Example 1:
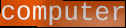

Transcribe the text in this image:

computer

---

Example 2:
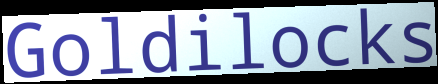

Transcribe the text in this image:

Goldilocks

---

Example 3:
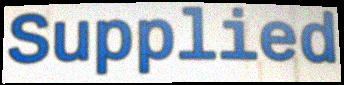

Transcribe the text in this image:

Supplied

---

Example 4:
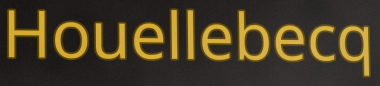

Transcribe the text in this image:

Houellebecq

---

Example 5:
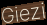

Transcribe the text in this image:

Giezi